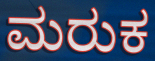
ಮರುಕ